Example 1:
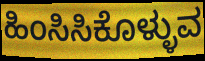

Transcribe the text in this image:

ಹಿಂಸಿಸಿಕೊಳ್ಳುವ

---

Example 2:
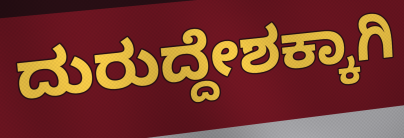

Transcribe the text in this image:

ದುರುದ್ದೇಶಕ್ಕಾಗಿ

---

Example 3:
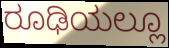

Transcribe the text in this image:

ರೂಢಿಯಲ್ಲೂ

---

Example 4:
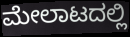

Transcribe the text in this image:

ಮೇಲಾಟದಲ್ಲಿ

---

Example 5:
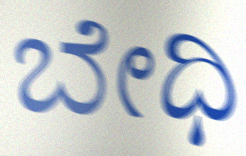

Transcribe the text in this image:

ಬೇಧಿ